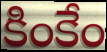
కింకేం